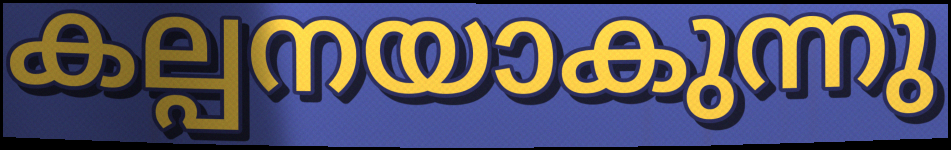
കല്പനയാകുന്നു